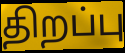
திறப்பு